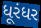
ધૂરંધર